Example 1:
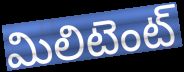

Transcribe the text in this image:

మిలిటెంట్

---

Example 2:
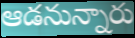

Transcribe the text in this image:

ఆడనున్నారు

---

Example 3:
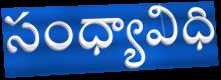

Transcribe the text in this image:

సంధ్యావిధి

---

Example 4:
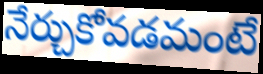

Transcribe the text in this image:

నేర్చుకోవడమంటే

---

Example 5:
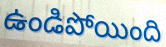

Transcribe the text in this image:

ఉండిపోయింది